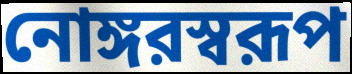
নোঙ্গরস্বরূপ